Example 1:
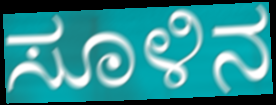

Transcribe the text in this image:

ಸೂಳಿನ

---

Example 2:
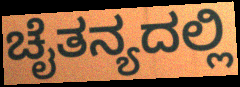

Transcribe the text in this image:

ಚೈತನ್ಯದಲ್ಲಿ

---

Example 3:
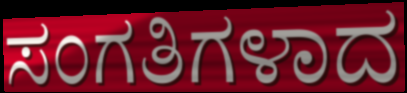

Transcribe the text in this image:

ಸಂಗತಿಗಳಾದ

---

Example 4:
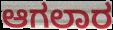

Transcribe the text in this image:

ಆಗಲಾರ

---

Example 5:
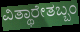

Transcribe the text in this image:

ವಿತ್ಥಾರೇತಬ್ಬಂ